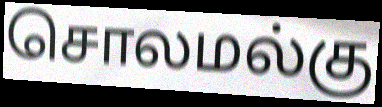
சொலமல்கு